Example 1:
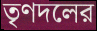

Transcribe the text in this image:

তৃণদলের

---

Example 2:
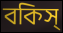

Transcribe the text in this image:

বকিস্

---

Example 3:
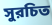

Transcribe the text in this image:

সুরচিত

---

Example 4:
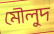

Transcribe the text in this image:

মৌলুদ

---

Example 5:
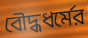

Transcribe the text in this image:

বৌদ্ধধর্মের